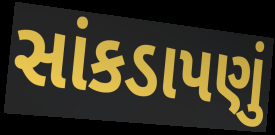
સાંકડાપણું